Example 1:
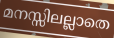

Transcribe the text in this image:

മനസ്സിലല്ലാതെ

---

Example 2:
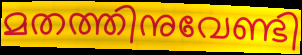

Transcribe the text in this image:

മതത്തിനുവേണ്ടി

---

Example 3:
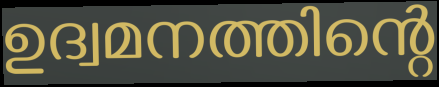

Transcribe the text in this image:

ഉദ്വമനത്തിന്റെ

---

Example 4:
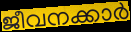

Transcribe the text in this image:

ജീവനക്കാർ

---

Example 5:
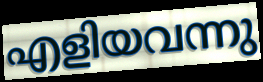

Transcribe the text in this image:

എളിയവന്നു